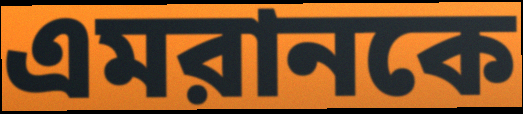
এমরানকে